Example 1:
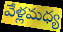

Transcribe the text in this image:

వేళ్లమధ్య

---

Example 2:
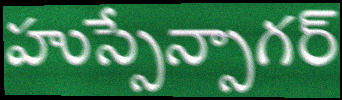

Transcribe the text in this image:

హుస్సేన్సాగర్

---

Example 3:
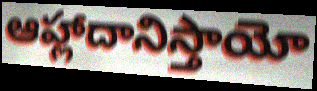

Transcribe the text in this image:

ఆహ్లాదానిస్తాయో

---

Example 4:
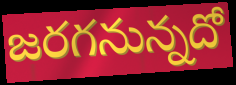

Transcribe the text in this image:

జరగనున్నదో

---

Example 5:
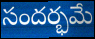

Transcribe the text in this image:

సందర్భమే